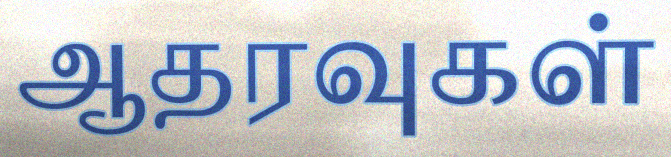
ஆதரவுகள்